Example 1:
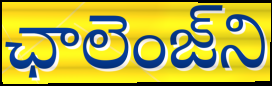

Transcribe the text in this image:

ఛాలెంజ్‌ని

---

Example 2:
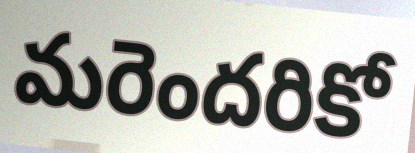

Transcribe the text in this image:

మరెందరికో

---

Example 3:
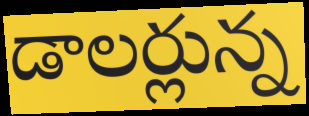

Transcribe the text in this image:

డాలర్లున్న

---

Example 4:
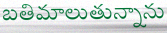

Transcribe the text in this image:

బతిమాలుతున్నాను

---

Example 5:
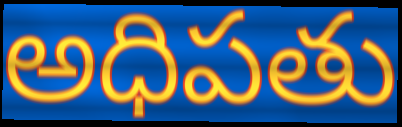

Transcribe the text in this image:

అధిపతు